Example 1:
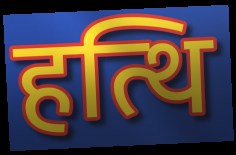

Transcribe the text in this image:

हत्थि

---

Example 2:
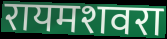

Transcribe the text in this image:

रायमशवरा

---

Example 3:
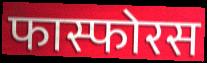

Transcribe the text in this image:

फास्‍फोरस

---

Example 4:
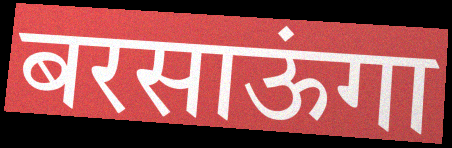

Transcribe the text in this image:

बरसाऊंगा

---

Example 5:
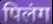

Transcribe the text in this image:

पिलंग